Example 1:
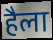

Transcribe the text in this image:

हैला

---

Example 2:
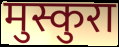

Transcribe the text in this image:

मुस्कुरा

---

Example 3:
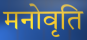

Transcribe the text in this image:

मनोवृति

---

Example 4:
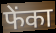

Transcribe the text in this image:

फेंका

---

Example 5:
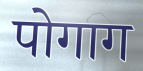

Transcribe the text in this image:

पोगाग